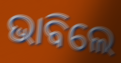
ଭାବିଲେ